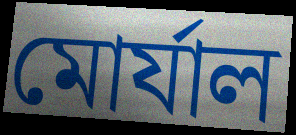
মোর্যাল